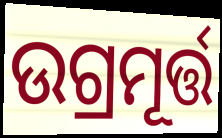
ଉଗ୍ରମୂର୍ତ୍ତ